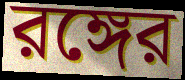
রঙ্গের